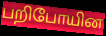
பறிபோயின